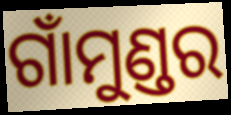
ଗାଁମୁଣ୍ଡର